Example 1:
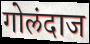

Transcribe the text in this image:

गोलंदाज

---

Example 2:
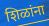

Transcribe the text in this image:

शिळांना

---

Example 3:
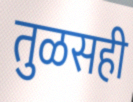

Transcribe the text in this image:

तुळसही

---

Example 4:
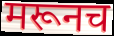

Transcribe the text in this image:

मरूनच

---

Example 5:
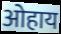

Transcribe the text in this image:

ओहाय